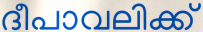
ദീപാവലിക്ക്